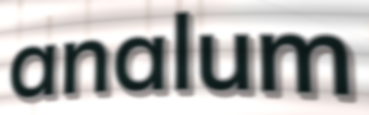
analum